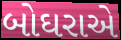
બોઘરાએ